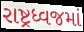
રાષ્ટ્રધ્વજમાં